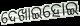
ଦେଖାଇହୋଇ